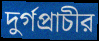
দুর্গপ্রাচীর